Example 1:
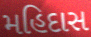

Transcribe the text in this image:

મહિદાસ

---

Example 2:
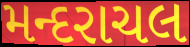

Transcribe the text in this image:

મન્દરાચલ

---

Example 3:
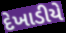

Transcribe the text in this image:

દેખાડીયે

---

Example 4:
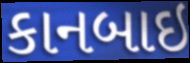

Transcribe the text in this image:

કાનબાઇ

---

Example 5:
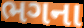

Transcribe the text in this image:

ભગના